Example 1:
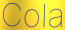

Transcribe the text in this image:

Cola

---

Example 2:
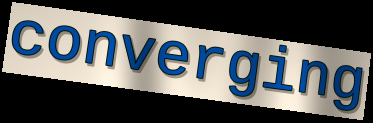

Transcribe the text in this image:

converging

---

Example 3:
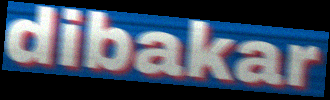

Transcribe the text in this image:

dibakar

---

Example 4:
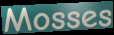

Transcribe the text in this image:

Mosses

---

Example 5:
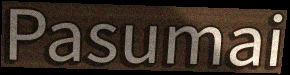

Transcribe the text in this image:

Pasumai